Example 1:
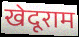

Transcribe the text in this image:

खेदूराम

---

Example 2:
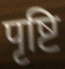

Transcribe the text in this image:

पृष्टि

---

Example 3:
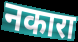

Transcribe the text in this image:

नकारा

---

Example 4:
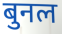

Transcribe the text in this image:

बुनल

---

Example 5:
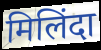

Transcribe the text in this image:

मिलिंदा